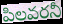
పిలవరనీ